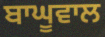
ਬਾਘੂਵਾਲ